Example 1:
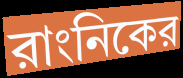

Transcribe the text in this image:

রাংনিকের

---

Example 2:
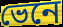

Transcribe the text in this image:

ভেনে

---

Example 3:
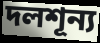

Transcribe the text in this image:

দলশূন্য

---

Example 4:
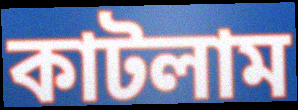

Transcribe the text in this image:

কাটলাম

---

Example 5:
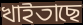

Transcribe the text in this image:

খাইতাছে